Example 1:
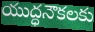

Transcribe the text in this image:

యుద్ధనౌకలకు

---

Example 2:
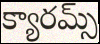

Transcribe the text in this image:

క్యారమ్స్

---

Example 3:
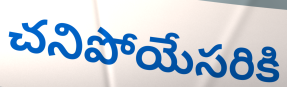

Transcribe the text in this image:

చనిపోయేసరికి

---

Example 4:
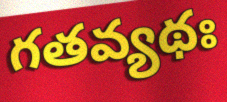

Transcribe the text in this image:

గతవ్యథః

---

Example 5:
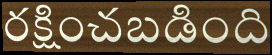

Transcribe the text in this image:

రక్షించబడింది